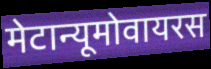
मेटान्यूमोवायरस